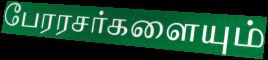
பேரரசர்களையும்